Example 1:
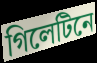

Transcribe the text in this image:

গিলেটিনে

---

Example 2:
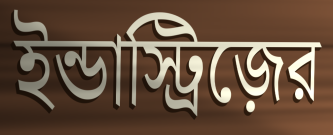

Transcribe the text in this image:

ইন্ডাস্ট্রিজ়ের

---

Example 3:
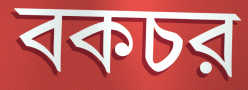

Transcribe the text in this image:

বকচর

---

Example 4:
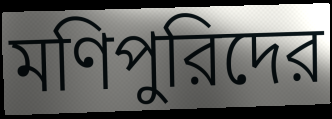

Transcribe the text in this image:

মণিপুরিদের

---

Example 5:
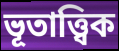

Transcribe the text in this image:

ভূতাত্ত্বিক